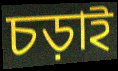
চড়াই